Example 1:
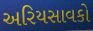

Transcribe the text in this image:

અરિયસાવકો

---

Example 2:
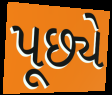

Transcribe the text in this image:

પૂછ્યે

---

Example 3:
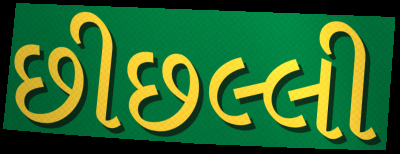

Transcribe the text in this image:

છીછલ્લી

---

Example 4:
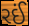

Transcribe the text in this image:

રઈં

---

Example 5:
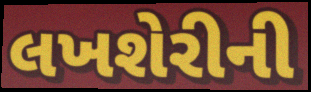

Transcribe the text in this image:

લખશેરીની